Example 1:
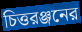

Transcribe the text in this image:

চিত্তরঞ্জনের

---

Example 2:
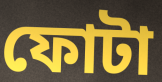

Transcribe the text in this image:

ফোটা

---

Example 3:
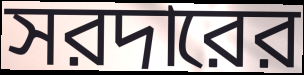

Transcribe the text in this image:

সরদারের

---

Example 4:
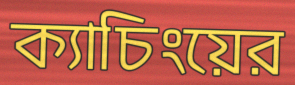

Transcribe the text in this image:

ক্যাচিংয়ের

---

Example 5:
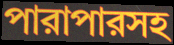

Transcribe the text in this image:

পারাপারসহ